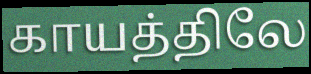
காயத்திலே